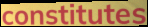
constitutes